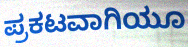
ಪ್ರಕಟವಾಗಿಯೂ